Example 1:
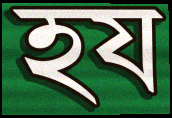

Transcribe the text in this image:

হয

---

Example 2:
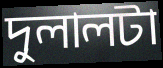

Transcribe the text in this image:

দুলালটা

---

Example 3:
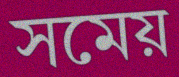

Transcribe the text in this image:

সমেয়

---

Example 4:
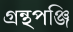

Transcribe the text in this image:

গ্রন্থপঞ্জি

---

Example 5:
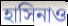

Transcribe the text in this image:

হাসিনাও